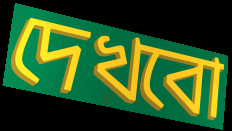
দেখবো